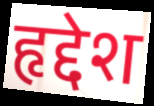
हृद्देश